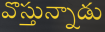
వొస్తున్నాడు